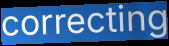
correcting